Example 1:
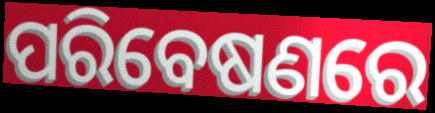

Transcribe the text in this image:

ପରିବେଷଣରେ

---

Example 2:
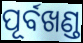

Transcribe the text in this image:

ପୂର୍ବଖଣ୍ଡ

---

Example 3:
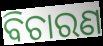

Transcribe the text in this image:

ବିଚାରଣ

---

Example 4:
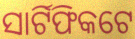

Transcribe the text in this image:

ସାର୍ଟିଫିକଟେ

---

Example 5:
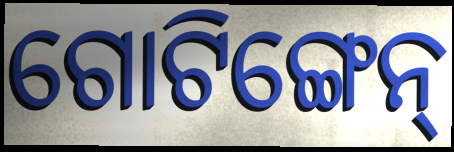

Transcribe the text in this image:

ଗୋଟିଙ୍ଗେନ୍